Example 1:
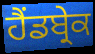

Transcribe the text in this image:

ਹੈਂਡਬ੍ਰੇਕ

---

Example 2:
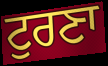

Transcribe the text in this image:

ਟੁਰਣਾ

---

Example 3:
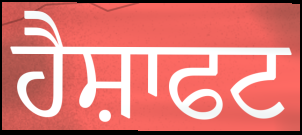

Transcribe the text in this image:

ਹੈਸ਼ਾਫਟ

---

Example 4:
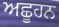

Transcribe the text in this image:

ਅਛੂਹਨ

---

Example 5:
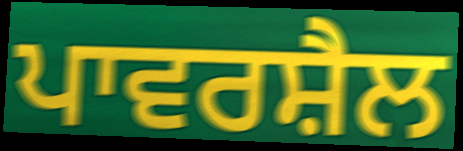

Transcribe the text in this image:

ਪਾਵਰਸ਼ੈਲ